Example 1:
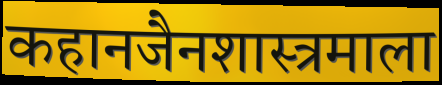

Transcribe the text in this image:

कहानजैनशास्त्रमाला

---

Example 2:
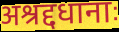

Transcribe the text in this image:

अश्रद्दधानाः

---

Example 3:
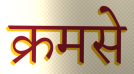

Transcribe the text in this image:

क्रमसे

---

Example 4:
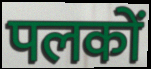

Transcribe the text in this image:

पलकों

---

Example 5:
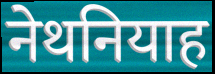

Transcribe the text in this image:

नेथनियाह